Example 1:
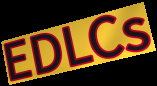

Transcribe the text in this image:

EDLCs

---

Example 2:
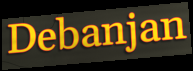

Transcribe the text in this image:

Debanjan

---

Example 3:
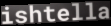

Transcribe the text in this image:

ishtella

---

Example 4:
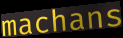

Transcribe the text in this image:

machans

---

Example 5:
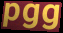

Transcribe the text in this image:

pgg